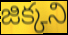
జిక్కని